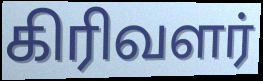
கிரிவளர்